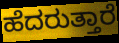
ಹೆದರುತ್ತಾರೆ